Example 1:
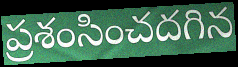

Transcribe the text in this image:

ప్రశంసించదగిన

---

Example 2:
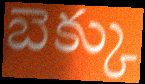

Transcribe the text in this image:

బెక్కు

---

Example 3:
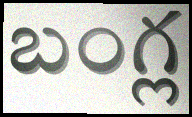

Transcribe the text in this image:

బంగ్ల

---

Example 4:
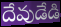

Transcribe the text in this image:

దేవుడేడి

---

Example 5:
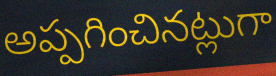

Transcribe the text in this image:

అప్పగించినట్లుగా